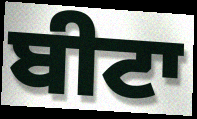
ਬੀਟਾ